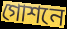
গোশনে